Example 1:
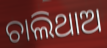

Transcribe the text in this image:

ଚାଲିଥାଅ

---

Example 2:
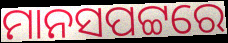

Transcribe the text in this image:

ମାନସପଟ୍ଟରେ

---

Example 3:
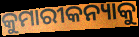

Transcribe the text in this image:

କୁମାରୀକନ୍ୟାକୁ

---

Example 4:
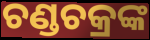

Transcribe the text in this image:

ଚଣ୍ଡଚକ୍ରଙ୍କ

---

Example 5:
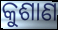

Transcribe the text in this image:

କୁଶାଣ